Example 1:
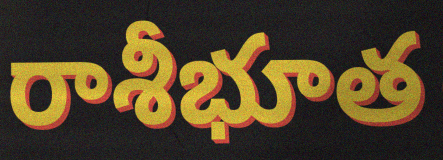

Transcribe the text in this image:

రాశీభూత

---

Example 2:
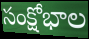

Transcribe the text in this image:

సంక్షోభాల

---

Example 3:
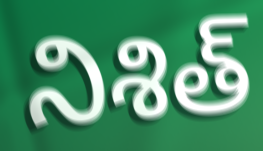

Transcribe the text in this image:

నిశిత్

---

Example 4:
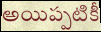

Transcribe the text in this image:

అయిప్పటికీ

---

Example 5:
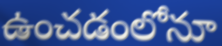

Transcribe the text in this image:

ఉంచడంలోనూ